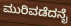
ಮುರಿವಡೆದನೈ